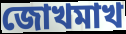
জোখমাখ